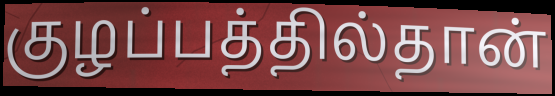
குழப்பத்தில்தான்